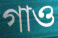
গাও